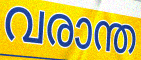
വരാന്ത